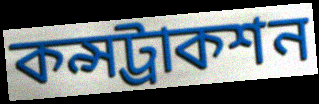
কন্সট্রাকশন